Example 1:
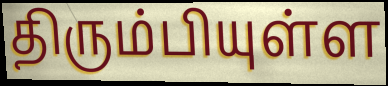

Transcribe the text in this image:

திரும்பியுள்ள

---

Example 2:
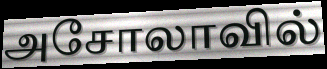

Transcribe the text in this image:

அசோலாவில்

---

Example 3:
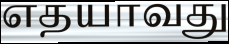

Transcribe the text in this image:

எதயாவது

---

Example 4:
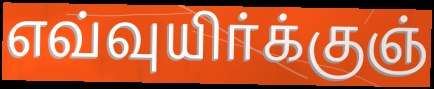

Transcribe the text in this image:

எவ்வுயிர்க்குஞ்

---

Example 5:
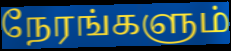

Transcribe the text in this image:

நேரங்களும்